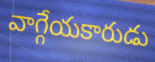
వాగ్గేయకారుడు